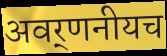
अवर्णनीयच